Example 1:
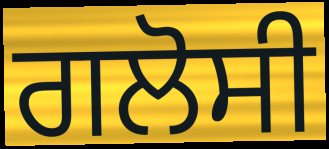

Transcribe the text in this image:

ਗਲੋਸੀ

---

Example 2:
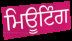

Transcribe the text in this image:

ਮਿਊਟਿੰਗ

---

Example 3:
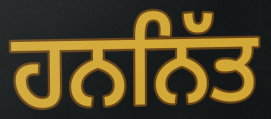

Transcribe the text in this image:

ਹਨਨਿੱਤ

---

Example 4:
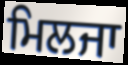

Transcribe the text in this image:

ਮਿਲਜਾ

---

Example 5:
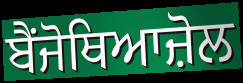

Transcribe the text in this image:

ਬੈਂਜੋਥਿਆਜ਼ੋਲ